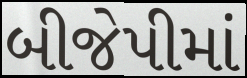
બીજેપીમાં